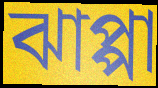
ঝাপ্পা